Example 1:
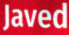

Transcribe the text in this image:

Javed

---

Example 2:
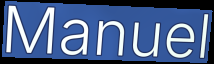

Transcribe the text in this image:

Manuel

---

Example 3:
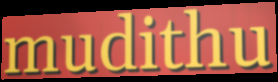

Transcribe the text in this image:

mudithu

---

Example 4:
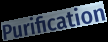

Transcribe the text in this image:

Purification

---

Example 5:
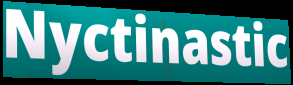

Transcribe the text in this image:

Nyctinastic